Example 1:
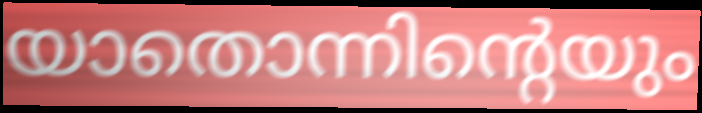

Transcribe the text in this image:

യാതൊന്നിന്റെയും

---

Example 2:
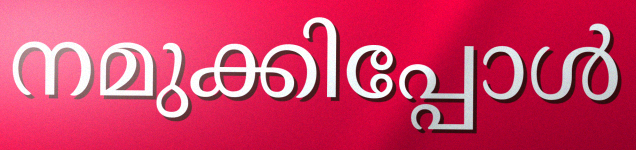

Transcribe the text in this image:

നമുക്കിപ്പോൾ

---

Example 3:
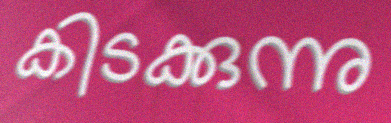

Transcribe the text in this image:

കിടക്കുന്നു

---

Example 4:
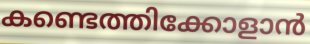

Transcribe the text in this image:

കണ്ടെത്തിക്കോളാൻ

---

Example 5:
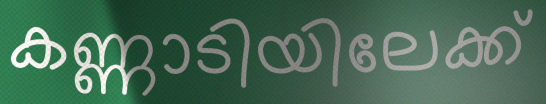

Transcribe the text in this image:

കണ്ണാടിയിലേക്ക്